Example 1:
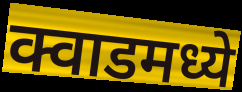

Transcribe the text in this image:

क्वाडमध्ये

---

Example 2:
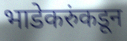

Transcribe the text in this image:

भाडेकरुंकडून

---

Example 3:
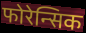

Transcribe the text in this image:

फोरेन्सिक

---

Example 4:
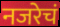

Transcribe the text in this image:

नजरेचं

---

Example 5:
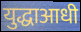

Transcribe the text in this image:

युद्धाआधी